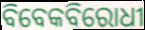
ବିବେକବିରୋଧୀ